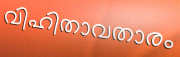
വിഹിതാവതാരം